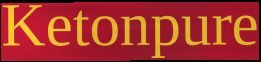
Ketonpure